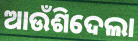
ଆଉଁଶିଦେଲା